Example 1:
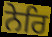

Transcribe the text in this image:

ਨੇਰਿ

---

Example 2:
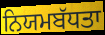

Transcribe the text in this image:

ਨਿਯਮਬੱਧਤਾ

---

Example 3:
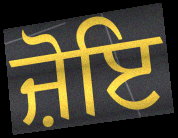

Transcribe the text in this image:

ਜ਼ੋਇ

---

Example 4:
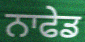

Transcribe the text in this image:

ਨਾਫੇਡ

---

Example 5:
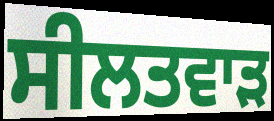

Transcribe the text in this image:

ਸੀਲਤਵਾੜ